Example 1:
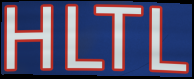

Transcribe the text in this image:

HLTL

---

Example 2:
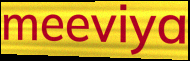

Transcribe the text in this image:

meeviya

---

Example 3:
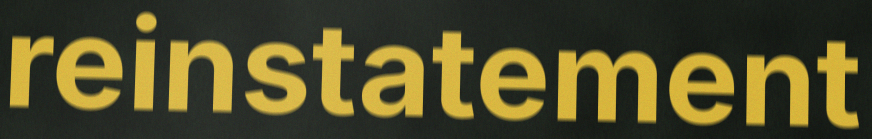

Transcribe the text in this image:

reinstatement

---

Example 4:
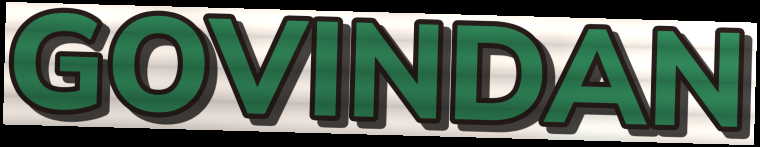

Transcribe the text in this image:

GOVINDAN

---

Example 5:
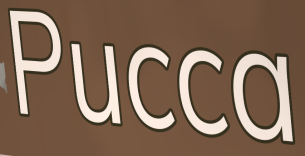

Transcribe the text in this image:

Pucca